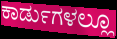
ಕಾರ್ಡುಗಳಲ್ಲೂ